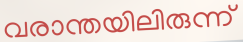
വരാന്തയിലിരുന്ന്